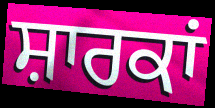
ਸ਼ਾਰਕਾਂ